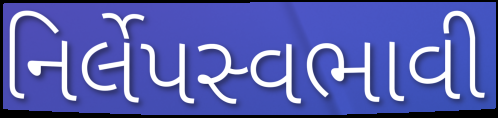
નિર્લેપસ્વભાવી